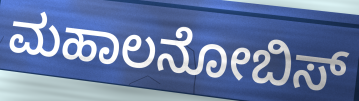
ಮಹಾಲನೋಬಿಸ್